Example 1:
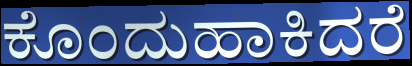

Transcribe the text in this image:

ಕೊಂದುಹಾಕಿದರೆ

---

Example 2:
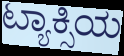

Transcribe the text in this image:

ಟ್ಯಾಕ್ಸಿಯ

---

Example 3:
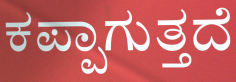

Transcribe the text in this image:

ಕಪ್ಪಾಗುತ್ತದೆ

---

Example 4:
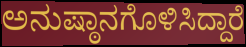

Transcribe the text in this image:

ಅನುಷ್ಠಾನಗೊಳಿಸಿದ್ದಾರೆ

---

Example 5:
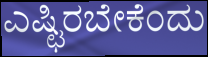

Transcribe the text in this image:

ಎಷ್ಟಿರಬೇಕೆಂದು